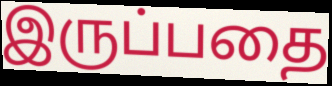
இருப்பதை